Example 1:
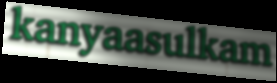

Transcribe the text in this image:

kanyaasulkam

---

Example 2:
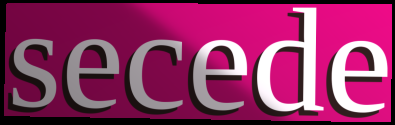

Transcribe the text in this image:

secede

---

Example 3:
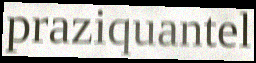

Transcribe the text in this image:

praziquantel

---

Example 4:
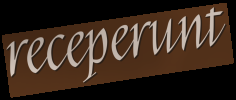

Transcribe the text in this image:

receperunt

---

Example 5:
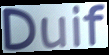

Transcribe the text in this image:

Duif